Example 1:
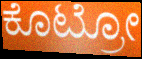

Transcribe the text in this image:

ಕೊಟ್ರೋ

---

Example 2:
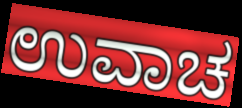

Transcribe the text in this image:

ಉವಾಚ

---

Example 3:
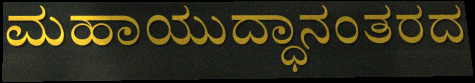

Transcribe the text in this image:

ಮಹಾಯುದ್ಧಾನಂತರದ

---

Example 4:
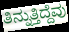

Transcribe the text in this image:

ತಿನ್ನುತ್ತಿದ್ದೆವು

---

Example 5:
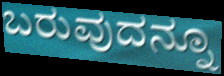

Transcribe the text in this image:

ಬರುವುದನ್ನೂ